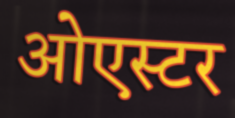
ओएस्टर